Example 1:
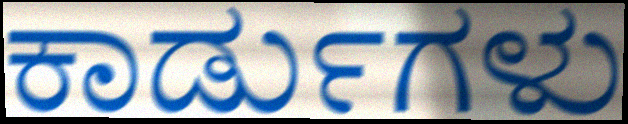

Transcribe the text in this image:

ಕಾರ್ಡುಗಳು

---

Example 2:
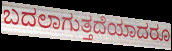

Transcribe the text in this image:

ಬದಲಾಗುತ್ತದೆಯಾದರೂ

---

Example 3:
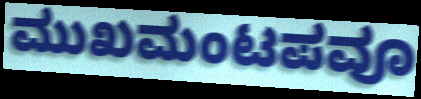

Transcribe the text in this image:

ಮುಖಮಂಟಪವೂ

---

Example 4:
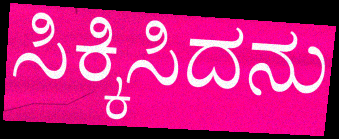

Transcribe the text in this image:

ಸಿಕ್ಕಿಸಿದನು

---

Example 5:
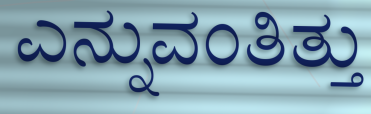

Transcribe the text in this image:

ಎನ್ನುವಂತಿತ್ತು